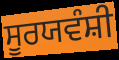
ਸੂਰਯਵੰਸ਼ੀ